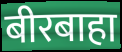
बीरबाहा